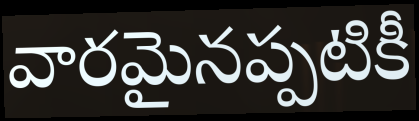
వారమైనప్పటికీ